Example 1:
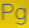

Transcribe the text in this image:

Pg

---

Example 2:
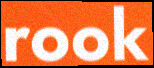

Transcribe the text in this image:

rook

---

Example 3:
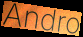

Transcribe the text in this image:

Andro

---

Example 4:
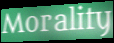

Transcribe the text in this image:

Morality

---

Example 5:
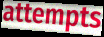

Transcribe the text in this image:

attempts